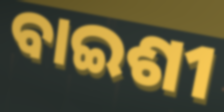
ବାଇଶୀ